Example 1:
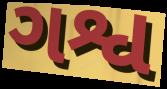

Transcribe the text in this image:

ગશ્વ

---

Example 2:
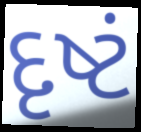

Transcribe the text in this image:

દૃષ્ટં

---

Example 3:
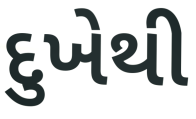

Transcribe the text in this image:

દુખેથી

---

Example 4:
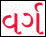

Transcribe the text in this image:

વર્ગ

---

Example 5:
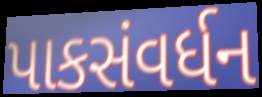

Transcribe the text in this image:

પાકસંવર્ધન